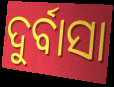
ଦୁର୍ବାସା